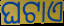
ଘଟାଏ